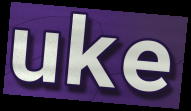
uke